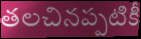
తలచినప్పటికీ